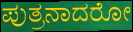
ಪುತ್ರನಾದರೋ